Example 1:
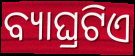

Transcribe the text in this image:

ବ୍ୟାଘ୍ରଟିଏ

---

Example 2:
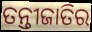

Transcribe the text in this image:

ତନ୍ତୀଜାତିର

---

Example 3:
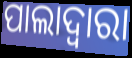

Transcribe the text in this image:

ପାଲାଦ୍ୱାରା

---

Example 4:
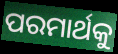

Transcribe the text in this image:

ପରମାର୍ଥକୁ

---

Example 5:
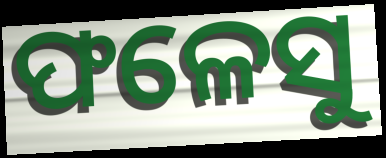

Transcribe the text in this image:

ଫଳେସୁ